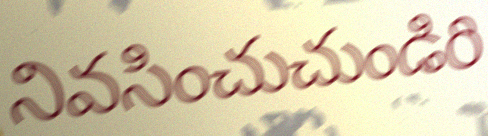
నివసించుచుండిరి